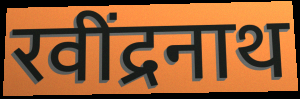
रवींद्रनाथ